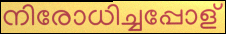
നിരോധിച്ചപ്പോള്